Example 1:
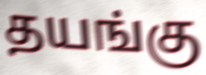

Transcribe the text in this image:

தயங்கு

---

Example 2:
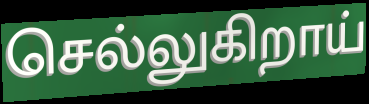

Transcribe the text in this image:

செல்லுகிறாய்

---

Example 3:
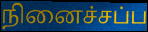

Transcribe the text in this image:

நினைச்சப்ப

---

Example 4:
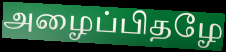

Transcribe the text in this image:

அழைப்பிதழே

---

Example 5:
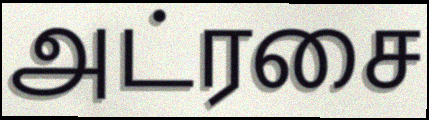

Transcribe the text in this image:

அட்ரசை